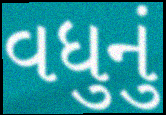
વધુનું